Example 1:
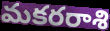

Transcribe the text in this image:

మకరరాశి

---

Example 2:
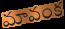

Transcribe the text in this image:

మావంక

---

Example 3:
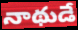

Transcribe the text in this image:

నాథుడే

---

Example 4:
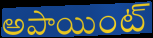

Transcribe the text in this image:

అపాయింట్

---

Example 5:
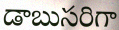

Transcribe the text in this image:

డాబుసరిగా